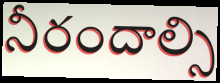
నీరందాల్సి